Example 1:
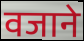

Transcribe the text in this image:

वजाने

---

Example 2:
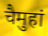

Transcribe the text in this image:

चैमुहां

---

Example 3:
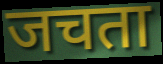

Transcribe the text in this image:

जचता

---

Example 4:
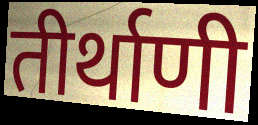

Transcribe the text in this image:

तीर्थाणी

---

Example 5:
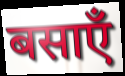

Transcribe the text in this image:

बसाएँ